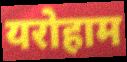
यरोहाम